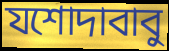
যশোদাবাবু